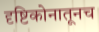
दृष्टिकोनातूनच